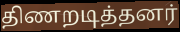
திணறடித்தனர்